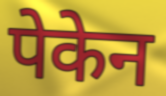
पेकेन